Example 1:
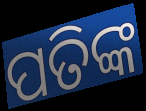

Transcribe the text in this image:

ପତିଙ୍କ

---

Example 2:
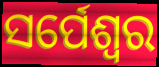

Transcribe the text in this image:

ସର୍ପେଶ୍ୱର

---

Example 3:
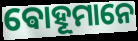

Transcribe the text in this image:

ଵୋହୂମାନେ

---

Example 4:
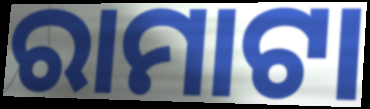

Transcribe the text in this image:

ରାମାଟା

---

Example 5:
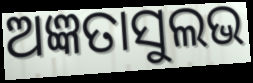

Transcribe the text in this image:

ଅଜ୍ଞତାସୁଲଭ